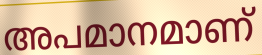
അപമാനമാണ്